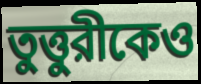
তুত্তুরীকেও